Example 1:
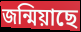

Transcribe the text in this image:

জন্মিয়াছে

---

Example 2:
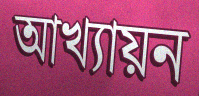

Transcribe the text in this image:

আখ্যায়ন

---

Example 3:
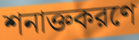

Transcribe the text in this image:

শনাক্তকরণে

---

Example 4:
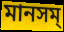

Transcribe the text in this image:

মানসম্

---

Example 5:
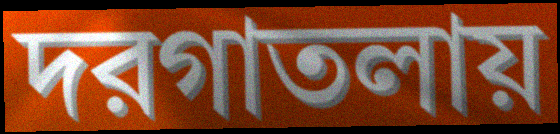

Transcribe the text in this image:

দরগাতলায়